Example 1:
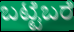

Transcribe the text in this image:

ಬಟ್ಟೆಬರೆ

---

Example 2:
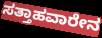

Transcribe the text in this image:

ಸತ್ತಾಹವಾರೇನ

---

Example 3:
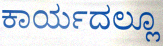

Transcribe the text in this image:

ಕಾರ್ಯದಲ್ಲೂ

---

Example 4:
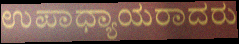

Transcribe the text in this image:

ಉಪಾಧ್ಯಾಯರಾದರು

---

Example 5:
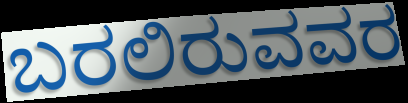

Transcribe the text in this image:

ಬರಲಿರುವವರ